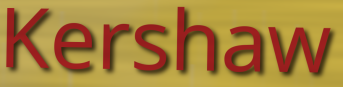
Kershaw